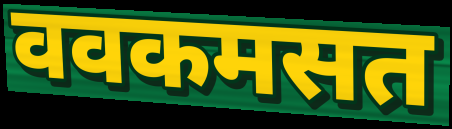
ववकमसत